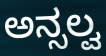
ಅನ್ಸಲ್ವ